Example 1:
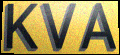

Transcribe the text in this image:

KVA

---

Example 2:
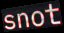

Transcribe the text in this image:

snot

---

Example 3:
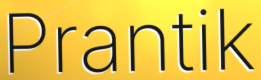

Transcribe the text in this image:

Prantik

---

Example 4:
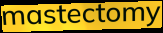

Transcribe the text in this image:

mastectomy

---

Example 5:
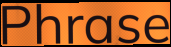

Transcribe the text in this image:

Phrase